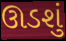
ઊડશું